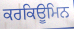
ਕਰਕਿਊਮਿਨ